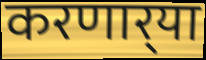
करणार्‍या